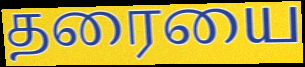
தரையை